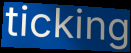
ticking